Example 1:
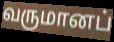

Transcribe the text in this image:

வருமானப்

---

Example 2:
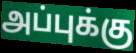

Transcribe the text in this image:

அப்புக்கு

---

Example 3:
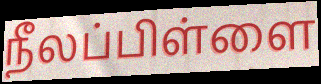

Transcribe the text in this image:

நீலப்பிள்ளை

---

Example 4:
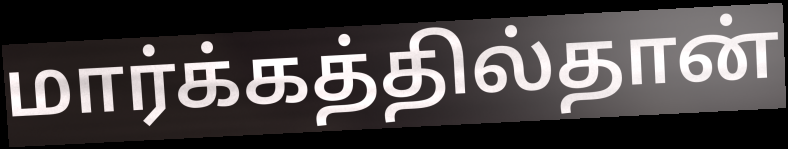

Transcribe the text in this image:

மார்க்கத்தில்தான்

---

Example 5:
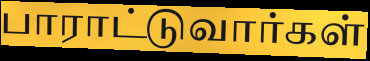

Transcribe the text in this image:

பாராட்டுவார்கள்